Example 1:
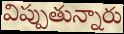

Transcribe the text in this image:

విప్పుతున్నారు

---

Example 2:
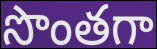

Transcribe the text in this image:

సొంతగా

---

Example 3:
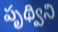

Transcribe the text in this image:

పృథ్విని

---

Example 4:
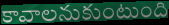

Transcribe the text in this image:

కావాలనుకుంటుంది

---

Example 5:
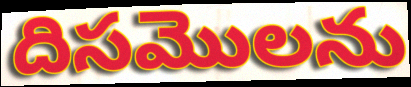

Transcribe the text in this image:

దిసమొలను